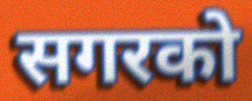
सगरको